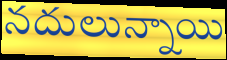
నదులున్నాయి